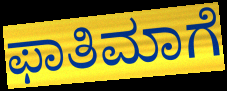
ಫಾತಿಮಾಗೆ